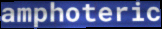
amphoteric